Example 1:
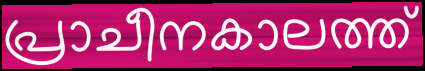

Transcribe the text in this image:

പ്രാചീനകാലത്ത്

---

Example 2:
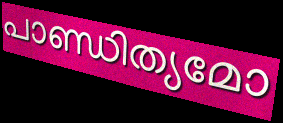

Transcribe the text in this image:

പാണ്ഡിത്യമോ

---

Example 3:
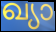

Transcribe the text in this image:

ഖ്യാ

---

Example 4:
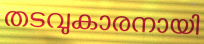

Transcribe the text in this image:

തടവുകാരനായി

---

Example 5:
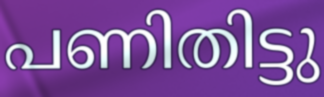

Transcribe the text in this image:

പണിതിട്ടു